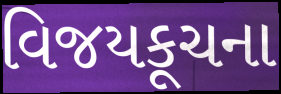
વિજયકૂચના